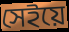
সেইয়ে